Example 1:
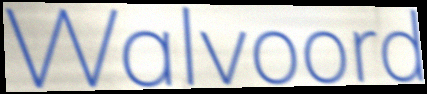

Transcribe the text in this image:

Walvoord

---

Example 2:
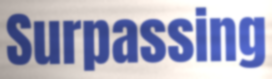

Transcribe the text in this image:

Surpassing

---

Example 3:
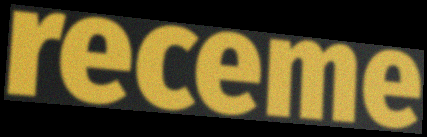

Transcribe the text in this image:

receme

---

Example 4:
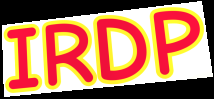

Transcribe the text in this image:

IRDP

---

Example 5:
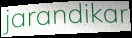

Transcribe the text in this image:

jarandikar